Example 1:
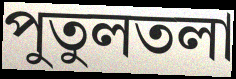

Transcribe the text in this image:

পুতুলতলা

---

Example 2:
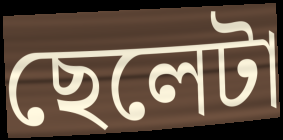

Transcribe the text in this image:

ছেলেটা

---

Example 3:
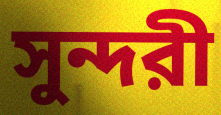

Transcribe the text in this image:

সুন্দরী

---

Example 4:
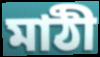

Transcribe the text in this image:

মাঠী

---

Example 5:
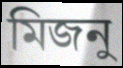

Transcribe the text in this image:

মিজনু